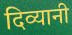
दिव्यानी